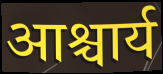
आश्चार्य